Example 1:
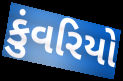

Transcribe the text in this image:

કુંવરિયો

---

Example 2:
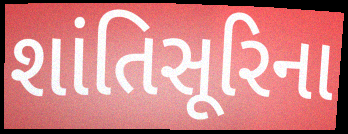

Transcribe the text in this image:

શાંતિસૂરિના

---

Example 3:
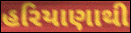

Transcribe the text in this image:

હરિયાણાથી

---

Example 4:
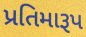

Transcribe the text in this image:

પ્રતિમારૂપ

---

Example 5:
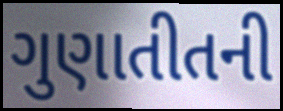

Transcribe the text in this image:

ગુણાતીતની